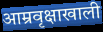
आम्रवृक्षाखाली